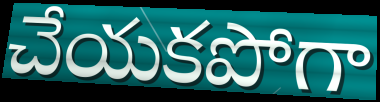
చేయకపోగా